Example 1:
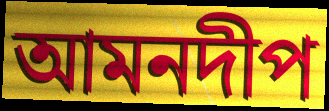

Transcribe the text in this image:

আমনদীপ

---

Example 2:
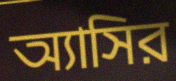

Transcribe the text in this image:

অ্যাসির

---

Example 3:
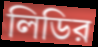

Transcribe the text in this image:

লিডির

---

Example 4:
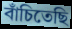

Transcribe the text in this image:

বাঁচিতেছি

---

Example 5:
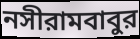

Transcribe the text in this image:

নসীরামবাবুর